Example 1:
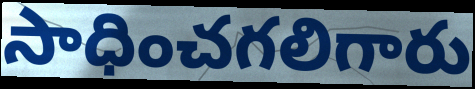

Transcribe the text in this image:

సాధించగలిగారు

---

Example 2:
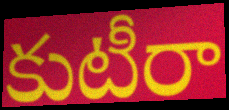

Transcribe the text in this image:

కుటీరా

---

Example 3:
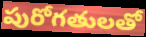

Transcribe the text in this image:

పురోగతులతో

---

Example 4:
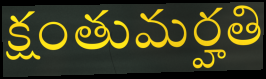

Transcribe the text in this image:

క్షంతుమర్హతి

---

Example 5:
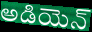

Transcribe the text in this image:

అడియెన్